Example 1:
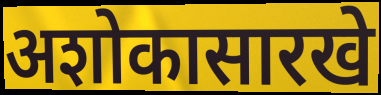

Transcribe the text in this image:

अशोकासारखे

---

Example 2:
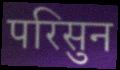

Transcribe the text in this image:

परिसुन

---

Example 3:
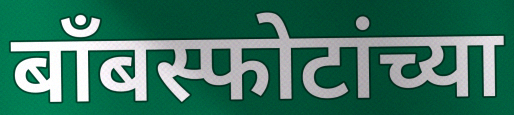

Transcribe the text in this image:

बॉंबस्फोटांच्या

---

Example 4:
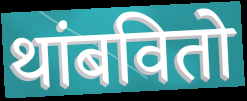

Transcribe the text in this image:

थांबवितो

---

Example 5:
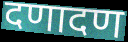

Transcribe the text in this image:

दणादण